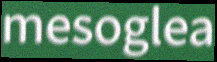
mesoglea